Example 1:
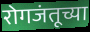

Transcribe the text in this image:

रोगजंतूच्या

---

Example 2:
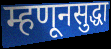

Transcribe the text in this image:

म्हणूनसुद्धा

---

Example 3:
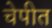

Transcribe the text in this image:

चेपीत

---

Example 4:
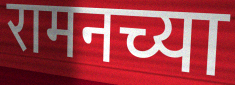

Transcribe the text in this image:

रामनच्या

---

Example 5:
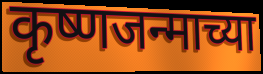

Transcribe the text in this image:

कृष्णजन्माच्या